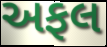
અફલ